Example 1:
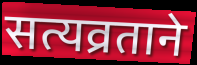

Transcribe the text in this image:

सत्यव्रताने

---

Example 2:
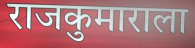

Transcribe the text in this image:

राजकुमाराला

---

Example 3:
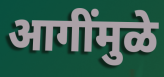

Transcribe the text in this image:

आगींमुळे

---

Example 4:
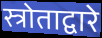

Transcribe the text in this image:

स्त्रोताद्वारे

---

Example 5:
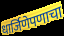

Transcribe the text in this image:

धार्जिणेपणाचा